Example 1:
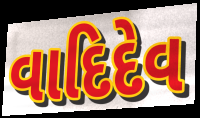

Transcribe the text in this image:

વાદિદેવ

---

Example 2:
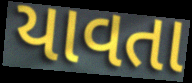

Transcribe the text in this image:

યાવતા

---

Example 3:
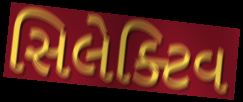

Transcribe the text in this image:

સિલેક્ટિવ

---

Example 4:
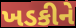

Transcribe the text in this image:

ખડકીને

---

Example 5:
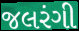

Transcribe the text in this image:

જલરંગી